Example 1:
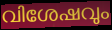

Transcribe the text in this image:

വിശേഷവും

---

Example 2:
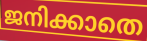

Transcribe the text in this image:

ജനിക്കാതെ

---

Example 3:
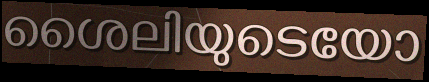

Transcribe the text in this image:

ശൈലിയുടെയോ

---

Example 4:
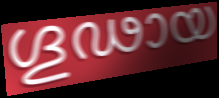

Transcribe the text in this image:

ഗൂഢായ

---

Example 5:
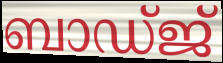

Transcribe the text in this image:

ബാഡ്ജ്